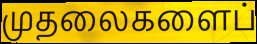
முதலைகளைப்